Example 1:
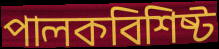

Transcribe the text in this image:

পালকবিশিষ্ট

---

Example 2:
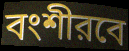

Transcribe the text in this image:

বংশীরবে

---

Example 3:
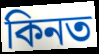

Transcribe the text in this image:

কিনত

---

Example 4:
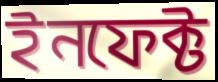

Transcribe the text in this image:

ইনফেক্ট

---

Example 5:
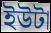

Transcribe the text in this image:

ইউটা